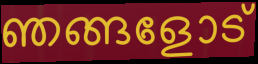
ഞങ്ങളോട്